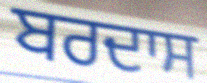
ਬਰਦਾਸ